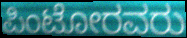
ಪಿಂಟೋರವರು